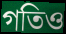
গতিও